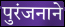
पुरंजनाने